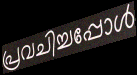
പ്രവചിച്ചപ്പോൾ